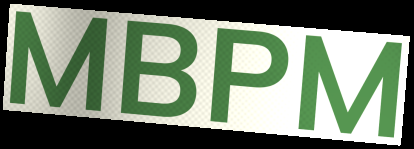
MBPM